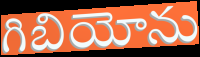
గిబియోను